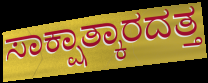
ಸಾಕ್ಷಾತ್ಕಾರದತ್ತ